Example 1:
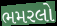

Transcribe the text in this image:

ભમરલો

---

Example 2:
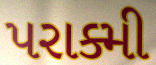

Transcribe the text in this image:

પરાક્મી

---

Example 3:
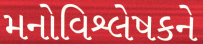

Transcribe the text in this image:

મનોવિશ્લેષકને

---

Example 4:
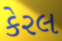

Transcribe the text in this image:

કેરલ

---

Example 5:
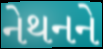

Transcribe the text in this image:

નેથનને